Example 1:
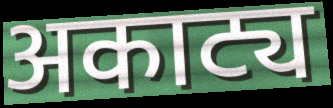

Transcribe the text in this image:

अकाट्य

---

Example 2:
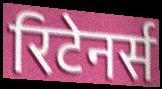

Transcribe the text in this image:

रिटेनर्स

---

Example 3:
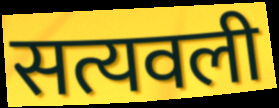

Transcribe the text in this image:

सत्यवली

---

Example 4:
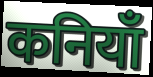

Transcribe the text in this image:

कनियाँ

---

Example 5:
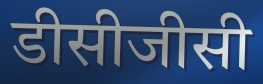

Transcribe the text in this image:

डीसीजीसी